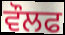
ਵੌਲਫ